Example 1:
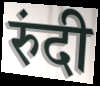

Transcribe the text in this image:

रुंदी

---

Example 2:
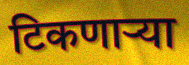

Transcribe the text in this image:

टिकणाऱ्या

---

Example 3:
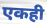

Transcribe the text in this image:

एकही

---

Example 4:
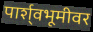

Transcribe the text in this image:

पार्श्वभूमीवर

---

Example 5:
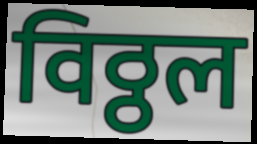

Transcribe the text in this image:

विठ्ठल